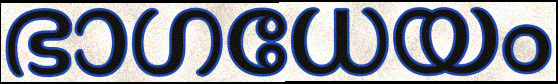
ഭാഗധേയം